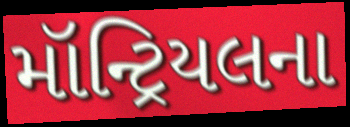
મૉન્ટ્રિયલના